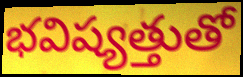
భవిష్యత్తుతో